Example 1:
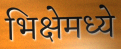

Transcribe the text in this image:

भिक्षेमध्ये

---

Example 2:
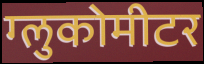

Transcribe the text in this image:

ग्लुकोमीटर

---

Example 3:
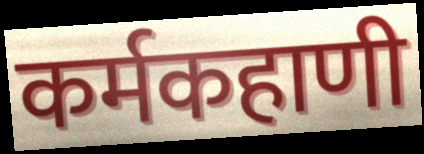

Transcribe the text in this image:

कर्मकहाणी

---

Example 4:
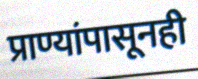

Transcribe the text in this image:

प्राण्यांपासूनही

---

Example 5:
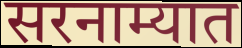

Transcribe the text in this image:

सरनाम्यात